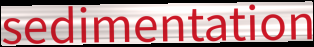
sedimentation